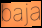
baja